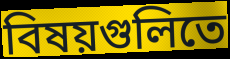
বিষয়গুলিতে